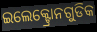
ଇଲେକ୍ଟ୍ରୋନଗୁଡିକ